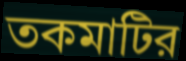
তকমাটির